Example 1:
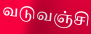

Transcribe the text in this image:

வடுவஞ்சி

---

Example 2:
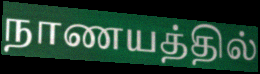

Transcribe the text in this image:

நாணயத்தில்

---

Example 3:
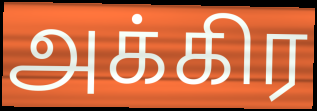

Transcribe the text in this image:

அக்கிர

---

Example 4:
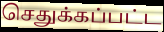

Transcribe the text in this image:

செதுக்கப்பட்ட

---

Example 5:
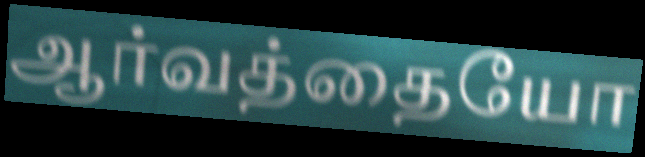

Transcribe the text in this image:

ஆர்வத்தையோ